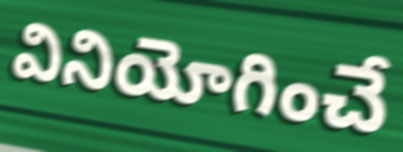
వినియోగించే